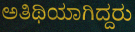
ಅತಿಥಿಯಾಗಿದ್ದರು